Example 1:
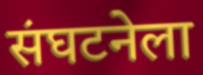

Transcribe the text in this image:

संघटनेला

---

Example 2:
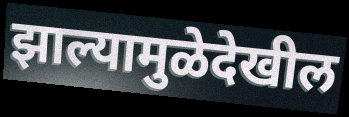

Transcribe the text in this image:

झाल्यामुळेदेखील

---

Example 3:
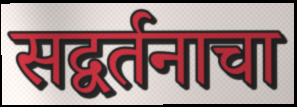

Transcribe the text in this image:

सद्वर्तनाचा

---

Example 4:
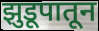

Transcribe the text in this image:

झुडूपातून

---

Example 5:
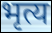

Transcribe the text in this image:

भृत्य